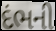
દંભની